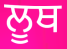
ਲੂਥ